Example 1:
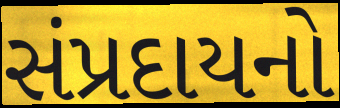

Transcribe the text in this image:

સંપ્રદાયનો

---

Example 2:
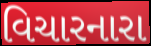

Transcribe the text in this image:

વિચારનારા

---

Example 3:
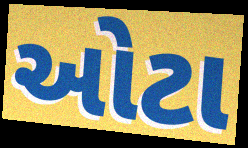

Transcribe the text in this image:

ઓટા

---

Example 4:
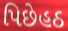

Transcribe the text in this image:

પિછેહઠ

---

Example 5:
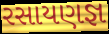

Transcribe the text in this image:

રસાયણજ્ઞ